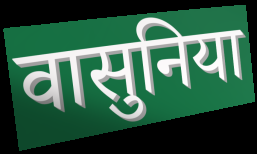
वासुनिया